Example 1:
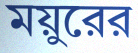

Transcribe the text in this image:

ময়ুরের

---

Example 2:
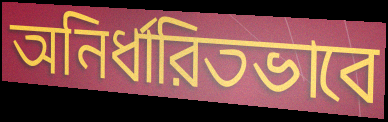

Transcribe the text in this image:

অনির্ধারিতভাবে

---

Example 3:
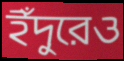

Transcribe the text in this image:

ইঁদুরেও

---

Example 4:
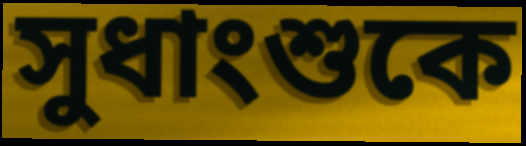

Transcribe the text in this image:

সুধাংশুকে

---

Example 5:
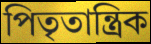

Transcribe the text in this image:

পিতৃতান্ত্রিক